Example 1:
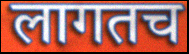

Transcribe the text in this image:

लागतच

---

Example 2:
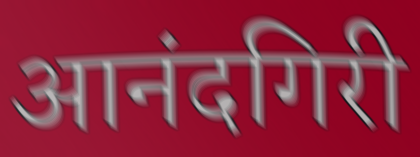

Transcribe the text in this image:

आनंदगिरी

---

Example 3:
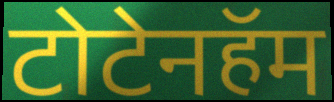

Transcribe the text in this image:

टोटेनहॅम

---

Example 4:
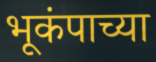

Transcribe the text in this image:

भूकंपाच्या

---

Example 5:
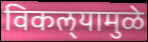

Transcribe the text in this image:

विकल्यामुळे